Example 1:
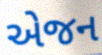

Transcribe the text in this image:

એજન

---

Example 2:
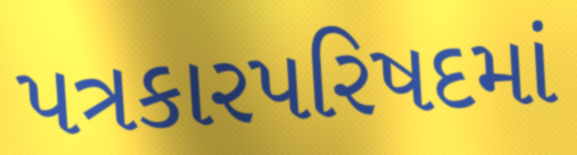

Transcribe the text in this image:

પત્રકારપરિષદમાં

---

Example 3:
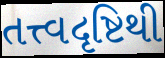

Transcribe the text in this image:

તત્ત્વદૃષ્ટિથી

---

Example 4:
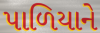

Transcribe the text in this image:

પાળિયાને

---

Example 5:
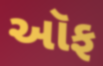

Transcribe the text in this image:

ઑફ